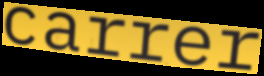
carrer